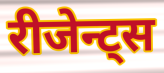
रीजेन्ट्स